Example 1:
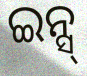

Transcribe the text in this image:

ଇନ୍ସ୍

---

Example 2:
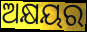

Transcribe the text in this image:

ଅକ୍ଷୟର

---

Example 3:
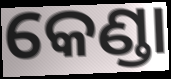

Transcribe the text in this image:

କେଣ୍ଡା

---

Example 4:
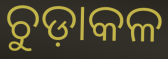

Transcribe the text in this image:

ଚୁଡ଼ାକଳ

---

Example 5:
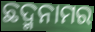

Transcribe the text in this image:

ଛଦ୍ମନାମର